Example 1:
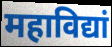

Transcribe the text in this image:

महाविद्यां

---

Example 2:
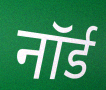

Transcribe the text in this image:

नॉर्ड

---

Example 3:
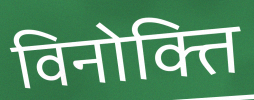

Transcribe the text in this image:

विनोक्ति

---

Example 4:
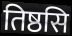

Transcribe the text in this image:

तिष्ठसि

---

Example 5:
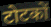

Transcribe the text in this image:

टोटकों